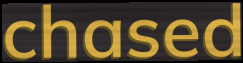
chased